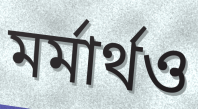
মর্মার্থও